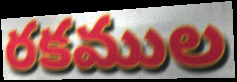
రకముల